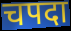
चपदा